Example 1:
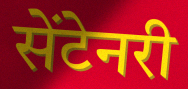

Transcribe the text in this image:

सेंटेनरी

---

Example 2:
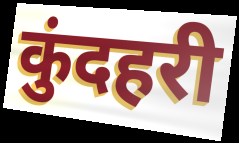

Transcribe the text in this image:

कुंदहरी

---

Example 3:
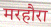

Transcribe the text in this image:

मरहौरा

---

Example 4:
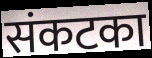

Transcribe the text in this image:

संकटका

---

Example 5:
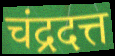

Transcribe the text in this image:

चंद्रदत्त